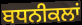
ਬਧਨੀਕਲਾਂ